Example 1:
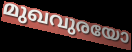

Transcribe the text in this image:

മുഖവുരയോ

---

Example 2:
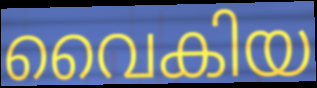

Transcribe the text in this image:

വൈകിയ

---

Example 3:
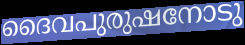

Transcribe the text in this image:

ദൈവപുരുഷനോടു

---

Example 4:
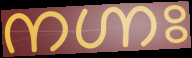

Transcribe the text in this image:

നഗ്നഃ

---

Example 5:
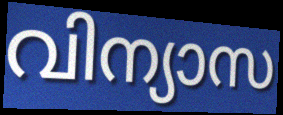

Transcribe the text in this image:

വിന്യാസ